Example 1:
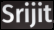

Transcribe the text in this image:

Srijit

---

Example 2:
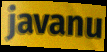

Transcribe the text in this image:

javanu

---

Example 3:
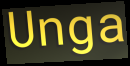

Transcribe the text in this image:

Unga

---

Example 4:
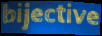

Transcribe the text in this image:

bijective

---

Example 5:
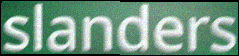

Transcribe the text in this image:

slanders